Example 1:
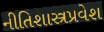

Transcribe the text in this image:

નીતિશાસ્ત્રપ્રવેશ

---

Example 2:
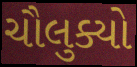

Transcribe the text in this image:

ચૌલુક્યો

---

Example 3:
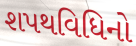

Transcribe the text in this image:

શપથવિધિનો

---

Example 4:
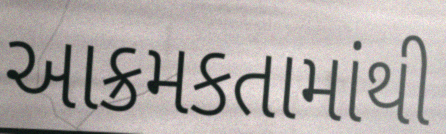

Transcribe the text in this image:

આક્રમકતામાંથી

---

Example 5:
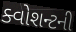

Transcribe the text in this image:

ક્વોશન્ટની